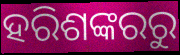
ହରିଶଙ୍କରରୁ